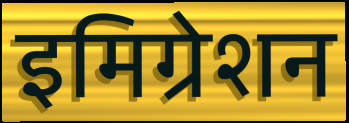
इमिग्रेशन